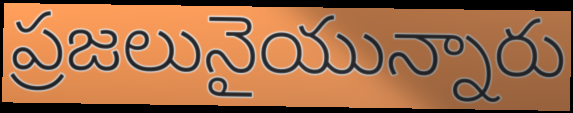
ప్రజలునైయున్నారు